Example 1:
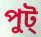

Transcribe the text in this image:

পুট্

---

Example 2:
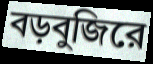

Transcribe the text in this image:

বড়বুজিরে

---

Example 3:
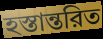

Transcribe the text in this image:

হস্তান্তরিত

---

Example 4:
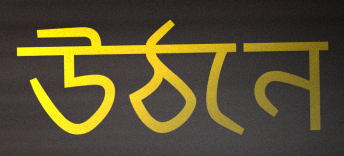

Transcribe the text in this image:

উঠনে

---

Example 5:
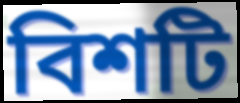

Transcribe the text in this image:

বিশটি